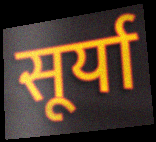
सूर्या